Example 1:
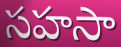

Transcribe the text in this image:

సహసా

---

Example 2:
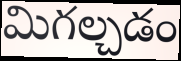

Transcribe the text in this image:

మిగల్చడం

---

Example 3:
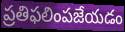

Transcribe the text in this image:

ప్రతిఫలింపజేయడం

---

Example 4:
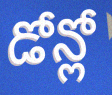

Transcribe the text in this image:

డోన్లో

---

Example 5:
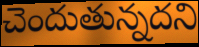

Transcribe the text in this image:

చెందుతున్నదని